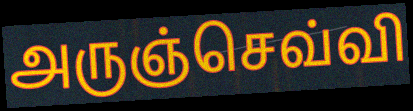
அருஞ்செவ்வி